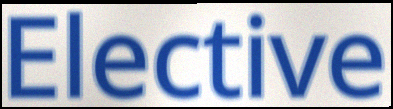
Elective